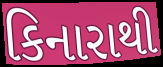
કિનારાથી